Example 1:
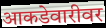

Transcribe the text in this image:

आकडेवारीवर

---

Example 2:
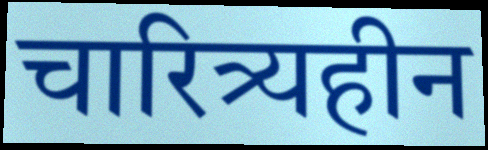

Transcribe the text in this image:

चारित्र्यहीन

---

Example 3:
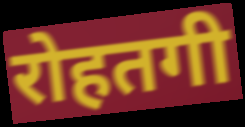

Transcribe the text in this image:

रोहतगी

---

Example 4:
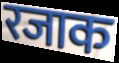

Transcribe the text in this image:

रजाक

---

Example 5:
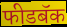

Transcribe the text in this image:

फीडबॅक